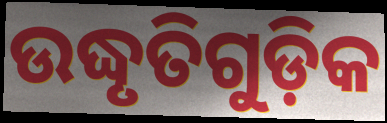
ଉଦ୍ଧୃତିଗୁଡ଼ିକ